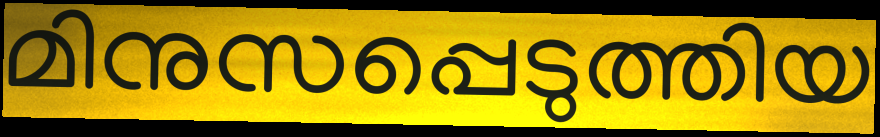
മിനുസപ്പെടുത്തിയ